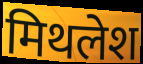
मिथलेश